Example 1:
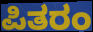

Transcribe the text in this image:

ಪಿತರಂ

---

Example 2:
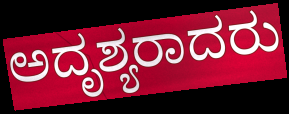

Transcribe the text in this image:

ಅದೃಶ್ಯರಾದರು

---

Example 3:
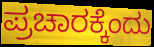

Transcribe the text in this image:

ಪ್ರಚಾರಕ್ಕೆಂದು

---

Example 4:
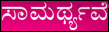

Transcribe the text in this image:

ಸಾಮರ್ಥ್ಯವೆ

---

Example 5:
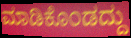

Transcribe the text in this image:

ಮಾಡಿಕೊಂಡದ್ದು